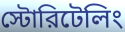
স্টোরিটেলিং